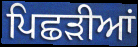
ਪਿਛੜੀਆਂ